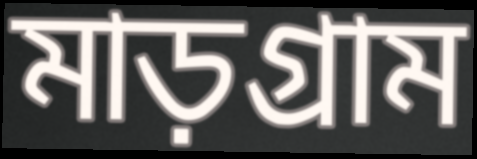
মাড়গ্রাম